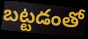
బట్టడంతో